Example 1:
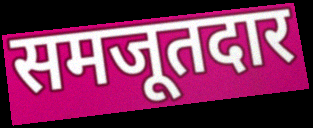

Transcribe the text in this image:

समजूतदार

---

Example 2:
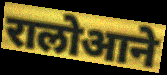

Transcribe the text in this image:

रालोआने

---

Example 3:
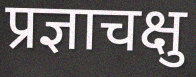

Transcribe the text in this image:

प्रज्ञाचक्षु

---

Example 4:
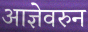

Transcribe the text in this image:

आज्ञेवरुन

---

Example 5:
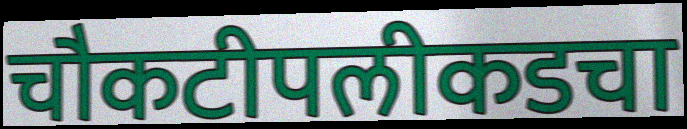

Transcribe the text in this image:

चौकटीपलीकडचा